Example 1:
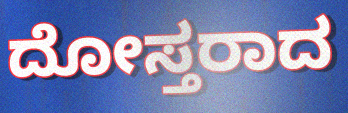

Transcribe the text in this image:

ದೋಸ್ತರಾದ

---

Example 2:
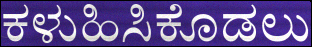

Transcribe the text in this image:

ಕಳುಹಿಸಿಕೊಡಲು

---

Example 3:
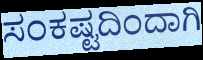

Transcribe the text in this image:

ಸಂಕಷ್ಟದಿಂದಾಗಿ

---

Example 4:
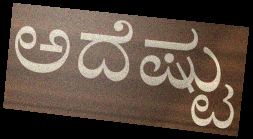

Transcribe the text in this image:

ಅದೆಷ್ಟು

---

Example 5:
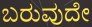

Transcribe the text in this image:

ಬರುವುದೇ